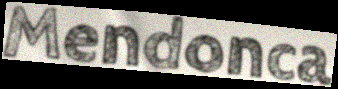
Mendonca